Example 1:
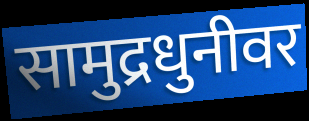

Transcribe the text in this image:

सामुद्रधुनीवर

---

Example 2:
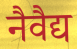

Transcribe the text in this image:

नैवैद्य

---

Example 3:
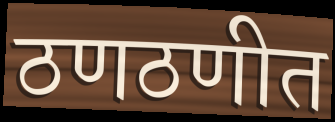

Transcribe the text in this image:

ठणठणीत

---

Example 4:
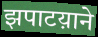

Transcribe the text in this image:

झपाटय़ाने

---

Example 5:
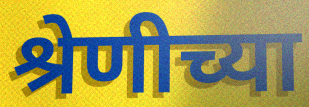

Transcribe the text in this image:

श्रेणीच्या